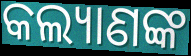
କଲ୍ୟାଣଙ୍କ